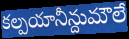
కల్పయానీన్దుమౌలే